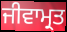
ਜੀਵਾਮ੍ਰਤ